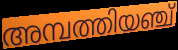
അമ്പത്തിയഞ്ച്